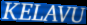
KELAVU